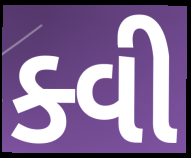
ક્વી